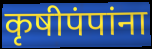
कृषीपंपांना